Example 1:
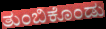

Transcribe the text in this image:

ತುಂಬಿಕೊಂಡು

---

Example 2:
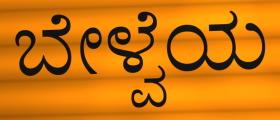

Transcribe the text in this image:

ಬೇಳ್ವೆಯ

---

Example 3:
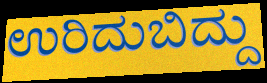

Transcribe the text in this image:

ಉರಿದುಬಿದ್ದು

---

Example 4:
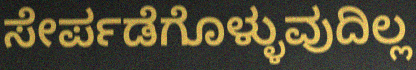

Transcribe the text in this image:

ಸೇರ್ಪಡೆಗೊಳ್ಳುವುದಿಲ್ಲ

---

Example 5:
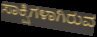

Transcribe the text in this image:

ಸಾಕ್ಷಿಗಳಾಗಿರುವ